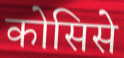
कोसिसे